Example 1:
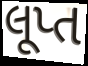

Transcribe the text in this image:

લૂપ્ત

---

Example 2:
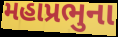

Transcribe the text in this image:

મહાપ્રભુના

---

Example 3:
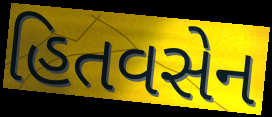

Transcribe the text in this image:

હિતવસેન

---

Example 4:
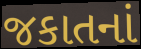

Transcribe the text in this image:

જકાતનાં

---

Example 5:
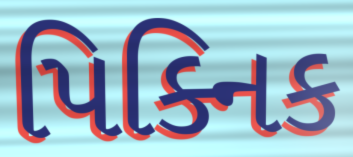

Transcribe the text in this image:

પિક્નિક